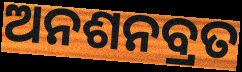
ଅନଶନବ୍ରତ